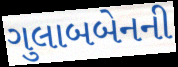
ગુલાબબેનની